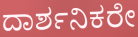
ದಾರ್ಶನಿಕರೇ